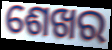
ଶେଖର